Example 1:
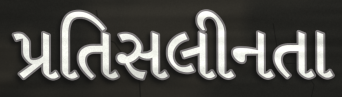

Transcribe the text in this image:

પ્રતિસલીનતા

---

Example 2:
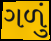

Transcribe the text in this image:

ગળું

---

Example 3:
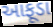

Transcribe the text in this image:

આફૂડા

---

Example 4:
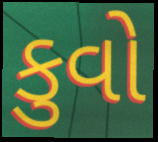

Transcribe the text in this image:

કુવો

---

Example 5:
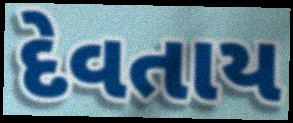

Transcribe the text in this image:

દેવતાય